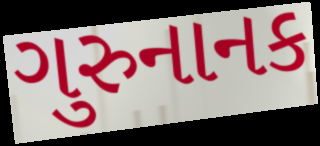
ગુરુનાનક